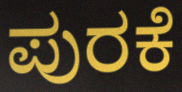
ಪುರಕೆ